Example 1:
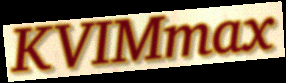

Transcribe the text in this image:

KVIMmax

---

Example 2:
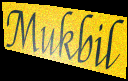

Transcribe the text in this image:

Mukbil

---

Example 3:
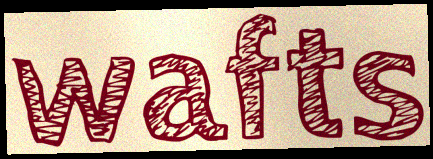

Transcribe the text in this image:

wafts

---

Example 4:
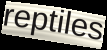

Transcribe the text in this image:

reptiles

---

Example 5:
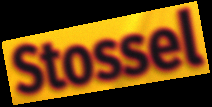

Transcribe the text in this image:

Stossel